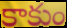
కాకుం